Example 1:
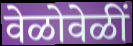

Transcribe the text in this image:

वेळोवेळीं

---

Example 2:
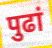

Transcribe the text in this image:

पुढां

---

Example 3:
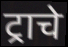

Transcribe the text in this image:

ट्राचे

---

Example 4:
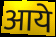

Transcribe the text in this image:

आये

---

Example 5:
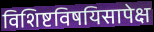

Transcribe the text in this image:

विशिष्टविषयिसापेक्ष